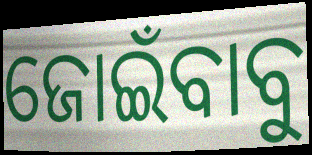
ଜୋଇଁବାବୁ